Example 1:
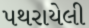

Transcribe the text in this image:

પથરાયેલી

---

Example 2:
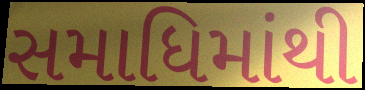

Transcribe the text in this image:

સમાધિમાંથી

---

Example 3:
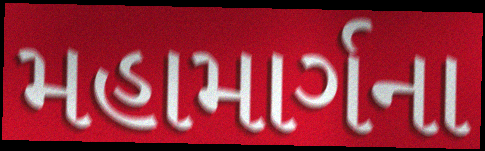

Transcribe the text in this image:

મહામાર્ગના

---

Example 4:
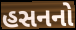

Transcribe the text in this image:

હસનનો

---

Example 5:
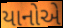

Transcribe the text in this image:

યાનોએ